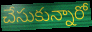
చేసుకున్నారో